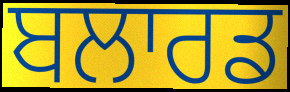
ਬਲਾਰਡ